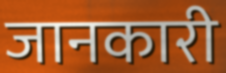
जानकारी